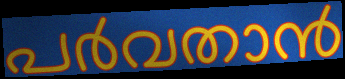
പർവതാൻ